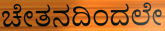
ಚೇತನದಿಂದಲೇ